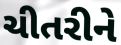
ચીતરીને